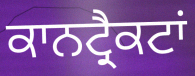
ਕਾਨਟ੍ਰੈਕਟਾਂ